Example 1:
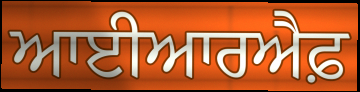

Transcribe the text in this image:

ਆਈਆਰਐਫ਼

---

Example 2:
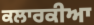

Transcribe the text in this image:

ਕਲਾਰਕੀਆ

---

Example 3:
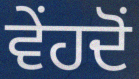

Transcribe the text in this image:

ਵੇਂਹਦੋਂ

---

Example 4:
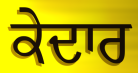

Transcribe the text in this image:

ਕੇਦਾਰ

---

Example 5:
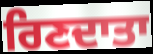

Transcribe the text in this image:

ਰਿਣਦਾਤਾ